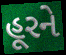
હૂરને